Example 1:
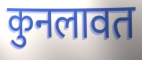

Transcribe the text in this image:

कुनलावत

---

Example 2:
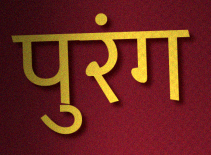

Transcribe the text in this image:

पुरंग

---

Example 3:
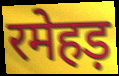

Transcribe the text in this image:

रमेहड़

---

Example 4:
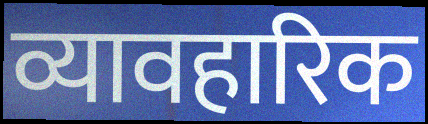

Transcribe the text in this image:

व्यावहारिक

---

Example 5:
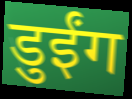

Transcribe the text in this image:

डुईंग